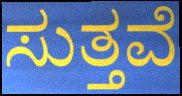
ಸುತ್ತವೆ